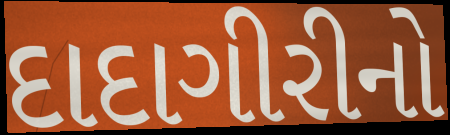
દાદાગીરીનો